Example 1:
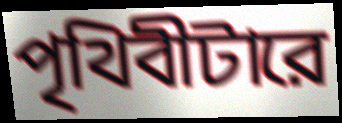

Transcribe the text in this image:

পৃথিবীটারে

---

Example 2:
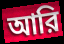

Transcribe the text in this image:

আরি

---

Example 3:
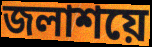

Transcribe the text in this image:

জলাশয়ে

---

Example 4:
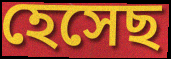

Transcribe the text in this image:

হেসেছ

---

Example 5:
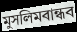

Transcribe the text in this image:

মুসলিমবান্ধব